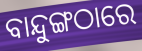
ବାନ୍ଦୁଙ୍ଗଠାରେ